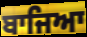
ਬਾਜਿਆ